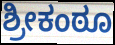
ಶ್ರೀಕಂಠೂ